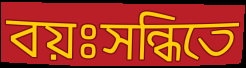
বয়ঃসন্ধিতে